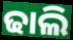
ଢାଲି